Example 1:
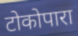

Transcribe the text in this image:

टोकोपारा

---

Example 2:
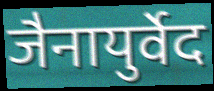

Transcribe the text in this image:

जैनायुर्वेद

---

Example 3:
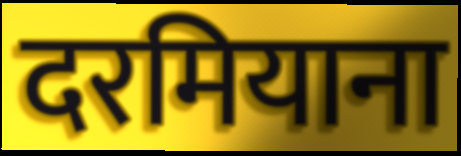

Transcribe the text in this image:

दरमियाना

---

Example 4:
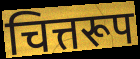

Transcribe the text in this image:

चित्तरूप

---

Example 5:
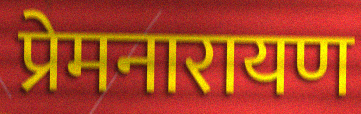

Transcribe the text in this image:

प्रेमनारायण